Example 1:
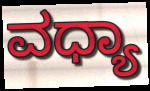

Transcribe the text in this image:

ವಧ್ಯಾ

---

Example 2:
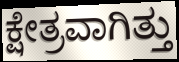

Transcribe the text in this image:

ಕ್ಷೇತ್ರವಾಗಿತ್ತು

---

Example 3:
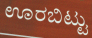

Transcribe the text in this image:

ಊರಬಿಟ್ಟು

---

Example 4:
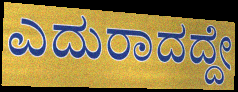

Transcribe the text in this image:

ಎದುರಾದದ್ದೇ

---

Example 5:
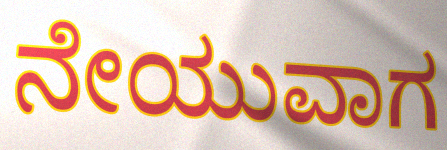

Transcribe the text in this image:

ನೇಯುವಾಗ